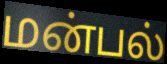
மன்பல்